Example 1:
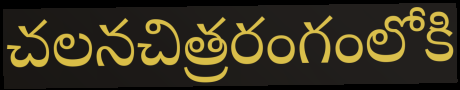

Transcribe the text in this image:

చలనచిత్రరంగంలోకి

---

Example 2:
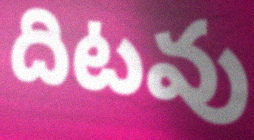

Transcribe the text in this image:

దిటవు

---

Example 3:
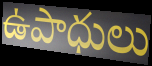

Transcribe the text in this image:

ఉపాధులు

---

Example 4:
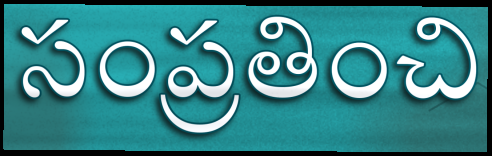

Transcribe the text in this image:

సంప్రతించి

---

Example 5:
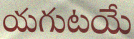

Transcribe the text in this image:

యగుటయే